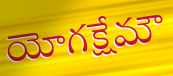
యోగక్షేమౌ